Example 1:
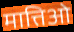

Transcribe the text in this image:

मात्तिओ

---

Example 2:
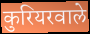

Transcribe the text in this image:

कुरियरवाले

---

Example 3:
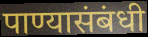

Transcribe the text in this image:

पाण्यासंबंधी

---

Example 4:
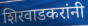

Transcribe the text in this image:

शिरवाडकरांनी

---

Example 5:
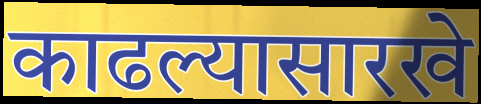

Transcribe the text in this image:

काढल्यासारखे